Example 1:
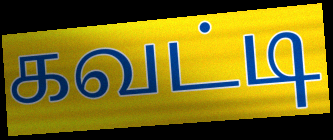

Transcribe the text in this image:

கவட்டி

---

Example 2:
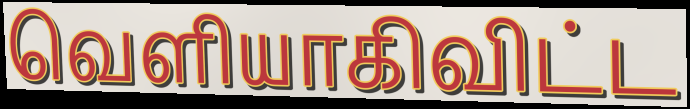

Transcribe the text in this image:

வெளியாகிவிட்ட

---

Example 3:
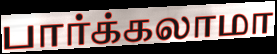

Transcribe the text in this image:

பார்க்கலாமா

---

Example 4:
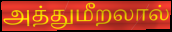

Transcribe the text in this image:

அத்துமீறலால்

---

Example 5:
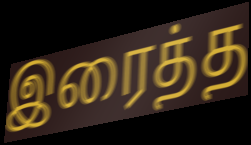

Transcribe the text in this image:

இரைத்த